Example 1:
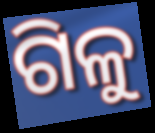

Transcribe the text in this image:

ଗିଳୁ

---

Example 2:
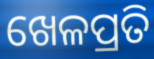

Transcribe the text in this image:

ଖେଳପ୍ରତି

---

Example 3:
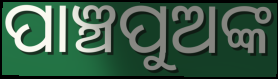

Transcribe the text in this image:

ପାଞ୍ଚପୁଅଙ୍କ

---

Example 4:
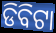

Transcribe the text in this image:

ଡିବିଟା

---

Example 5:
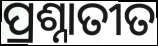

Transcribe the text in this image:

ପ୍ରଶ୍ନାତୀତ